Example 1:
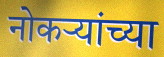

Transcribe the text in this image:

नोकऱ्यांच्या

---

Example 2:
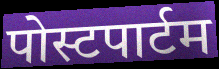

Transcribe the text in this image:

पोस्टपार्टम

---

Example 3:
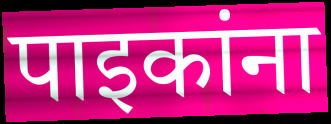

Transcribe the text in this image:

पाइकांना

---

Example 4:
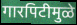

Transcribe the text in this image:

गारपिटीमुळे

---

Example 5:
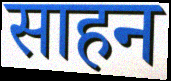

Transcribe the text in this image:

साहन